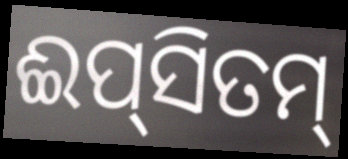
ଈପ୍‌ସିତମ୍